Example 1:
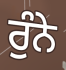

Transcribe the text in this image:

ਰੁੰਨੇ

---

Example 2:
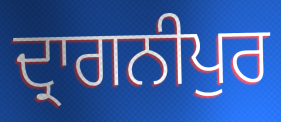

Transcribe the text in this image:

ਦ੍ਰਾਗਨੀਪੁਰ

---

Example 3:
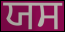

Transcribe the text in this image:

ਯਸ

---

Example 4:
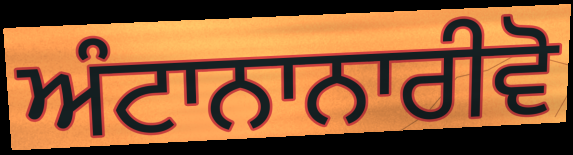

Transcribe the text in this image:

ਅੰਟਾਨਾਨਾਰੀਵੋ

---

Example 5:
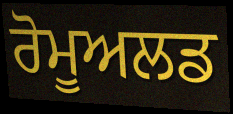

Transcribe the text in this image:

ਰੋਮੂਅਲਡ